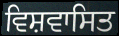
ਵਿਸ਼ਵਾਸਿਤ